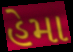
હેમા